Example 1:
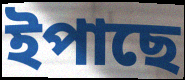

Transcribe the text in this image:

ইপাছে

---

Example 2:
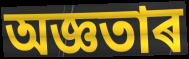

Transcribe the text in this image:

অজ্ঞতাৰ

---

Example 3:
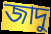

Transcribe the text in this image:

জাদু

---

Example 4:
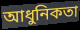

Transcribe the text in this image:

আধুনিকতা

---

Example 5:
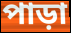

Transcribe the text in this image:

পাড়া